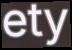
ety